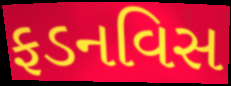
ફડનવિસ